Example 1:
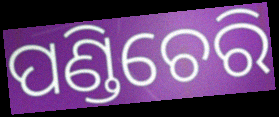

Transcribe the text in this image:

ପଣ୍ଡିଚେରି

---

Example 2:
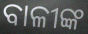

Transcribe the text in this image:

ବାଳୀଙ୍କ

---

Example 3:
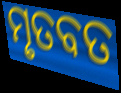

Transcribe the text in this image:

ମୃତବତ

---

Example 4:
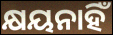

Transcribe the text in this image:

କ୍ଷୟନାହିଁ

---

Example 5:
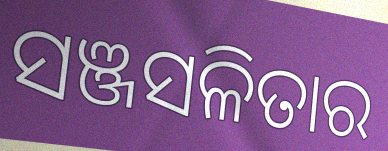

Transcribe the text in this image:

ସଞ୍ଜସଳିତାର